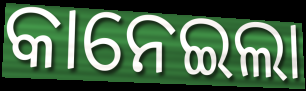
କାନେଇଲା